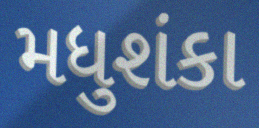
મધુશંકા